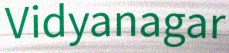
Vidyanagar